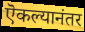
ऎकल्यानंतर